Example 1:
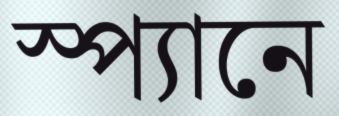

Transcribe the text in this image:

স্প্যানে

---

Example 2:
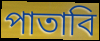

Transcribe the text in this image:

পাতাবি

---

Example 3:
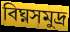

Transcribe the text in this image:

বিঘ্নসমুদ্র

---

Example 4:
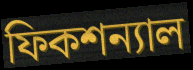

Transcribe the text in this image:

ফিকশন্যাল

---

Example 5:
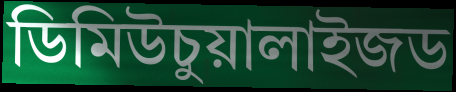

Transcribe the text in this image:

ডিমিউচুয়ালাইজড